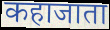
कहाजाता